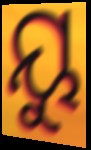
ୟୁ